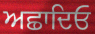
ਅਛਾਦਿਓ